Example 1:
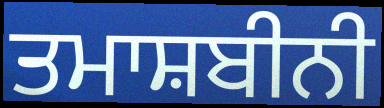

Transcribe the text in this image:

ਤਮਾਸ਼ਬੀਨੀ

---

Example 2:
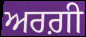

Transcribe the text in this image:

ਅਰਗ਼ੀ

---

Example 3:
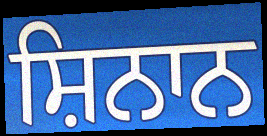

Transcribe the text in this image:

ਸ਼ਿਨਾਨ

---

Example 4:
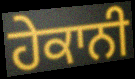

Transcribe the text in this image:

ਹੇਕਾਨੀ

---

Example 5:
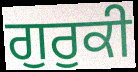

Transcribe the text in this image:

ਗੁਰੁਕੀ